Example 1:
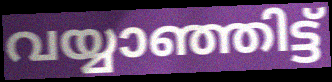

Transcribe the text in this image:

വയ്യാഞ്ഞിട്ട്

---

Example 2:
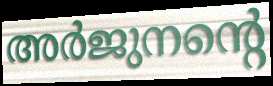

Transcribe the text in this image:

അർജുനന്റെ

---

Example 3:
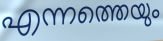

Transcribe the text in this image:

എന്നത്തെയും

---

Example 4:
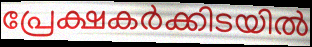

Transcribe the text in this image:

പ്രേക്ഷകർക്കിടയിൽ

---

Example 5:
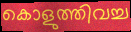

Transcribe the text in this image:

കൊളുത്തിവച്ച